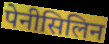
पेनीसिलिन